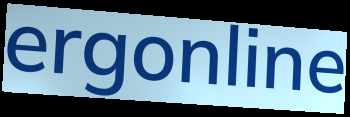
ergonline